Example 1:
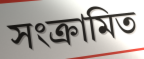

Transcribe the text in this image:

সংক্রামিত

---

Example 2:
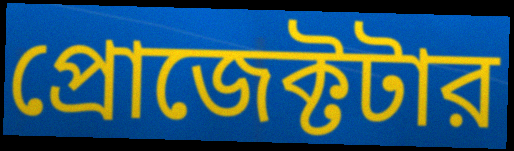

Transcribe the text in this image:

প্রোজেক্টটার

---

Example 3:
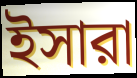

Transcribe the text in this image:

ইসারা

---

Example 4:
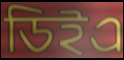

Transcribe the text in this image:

ডিইএ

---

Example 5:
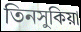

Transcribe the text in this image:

তিনসুকিয়া